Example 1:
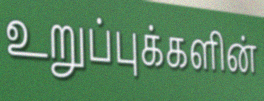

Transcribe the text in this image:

உறுப்புக்களின்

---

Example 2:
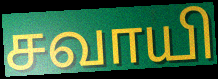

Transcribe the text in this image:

சவாயி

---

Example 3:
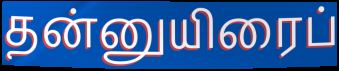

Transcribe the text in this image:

தன்னுயிரைப்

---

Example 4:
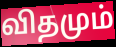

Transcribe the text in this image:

விதமும்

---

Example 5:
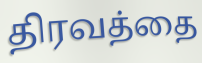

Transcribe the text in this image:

திரவத்தை